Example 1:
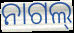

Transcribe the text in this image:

ନାଗଲ୍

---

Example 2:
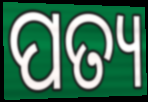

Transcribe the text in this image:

ପତ୍ୟ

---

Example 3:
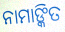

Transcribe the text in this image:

ନାମାଙ୍କିତ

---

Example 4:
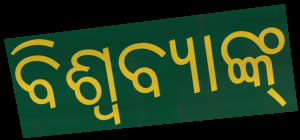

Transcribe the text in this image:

ବିଶ୍ବବ୍ୟାଙ୍କ୍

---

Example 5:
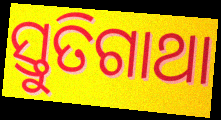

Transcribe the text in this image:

ସ୍ତୁତିଗାଥା